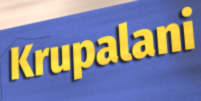
Krupalani